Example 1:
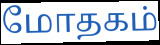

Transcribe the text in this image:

மோதகம்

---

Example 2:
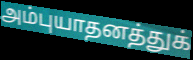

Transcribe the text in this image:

அம்புயாதனத்துக்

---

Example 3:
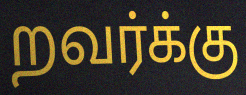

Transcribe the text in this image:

றவர்க்கு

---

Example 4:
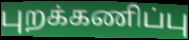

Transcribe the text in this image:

புறக்கணிப்பு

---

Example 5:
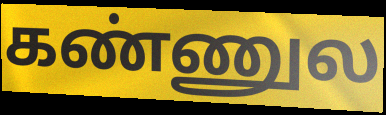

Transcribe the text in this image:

கண்ணுல